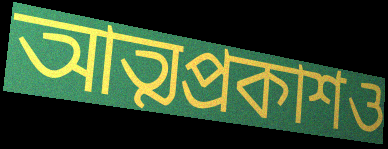
আত্মপ্রকাশও